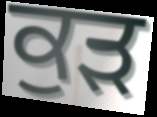
ਕੁੜ